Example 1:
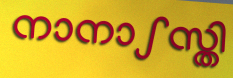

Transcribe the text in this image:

നാനാഽസ്തി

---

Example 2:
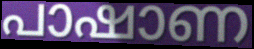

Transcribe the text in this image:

പാഷാണ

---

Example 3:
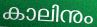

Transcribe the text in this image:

കാലിനും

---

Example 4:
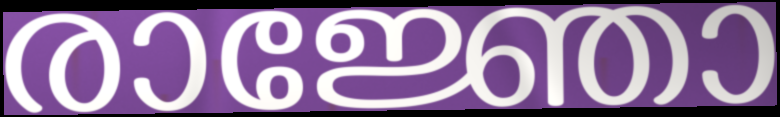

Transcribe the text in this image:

രാജ്ഞോ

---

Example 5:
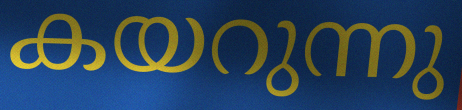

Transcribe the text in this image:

കയറുന്നു